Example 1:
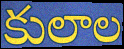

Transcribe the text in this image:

కులాల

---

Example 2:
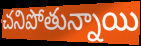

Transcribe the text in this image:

చనిపోతున్నాయి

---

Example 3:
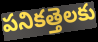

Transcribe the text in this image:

పనికత్తెలకు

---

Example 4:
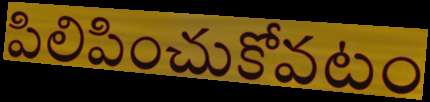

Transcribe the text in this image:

పిలిపించుకోవటం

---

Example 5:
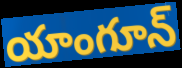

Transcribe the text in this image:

యాంగూన్